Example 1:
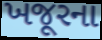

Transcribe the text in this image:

ખજૂરના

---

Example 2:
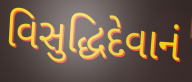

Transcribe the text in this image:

વિસુદ્ધિદેવાનં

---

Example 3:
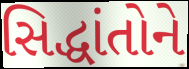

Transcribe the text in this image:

સિદ્ધાંતોને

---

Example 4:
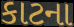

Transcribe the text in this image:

કાટના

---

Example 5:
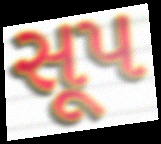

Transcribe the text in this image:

સૂપ